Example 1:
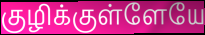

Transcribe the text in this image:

குழிக்குள்ளேயே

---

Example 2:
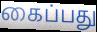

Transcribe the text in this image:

கைப்பது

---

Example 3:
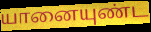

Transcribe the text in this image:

யானையுண்ட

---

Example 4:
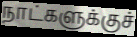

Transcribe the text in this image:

நாட்களுக்குச்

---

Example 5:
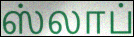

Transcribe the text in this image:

ஸ்லாப்